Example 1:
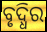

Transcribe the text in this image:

ବୃଦ୍ଧିର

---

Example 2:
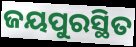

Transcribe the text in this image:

ଜୟପୁରସ୍ଥିତ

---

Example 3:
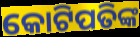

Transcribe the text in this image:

କୋଟିପତିଙ୍କ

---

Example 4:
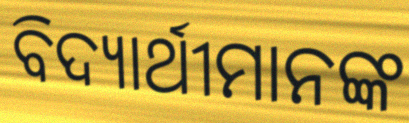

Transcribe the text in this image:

ବିଦ୍ୟାର୍ଥୀମାନଙ୍କ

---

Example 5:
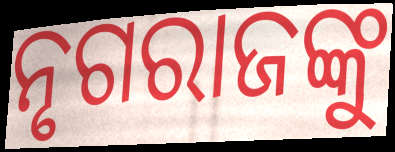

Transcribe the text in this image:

ନୃଗରାଜଙ୍କୁ